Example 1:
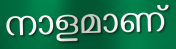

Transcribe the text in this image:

നാളമാണ്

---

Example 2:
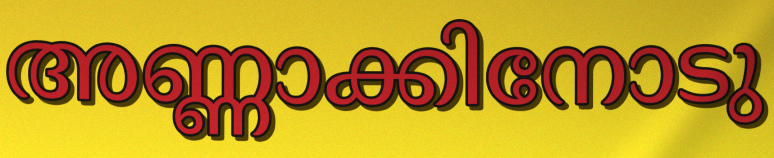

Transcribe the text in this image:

അണ്ണാക്കിനോടു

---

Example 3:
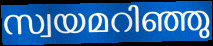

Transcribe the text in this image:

സ്വയമറിഞ്ഞു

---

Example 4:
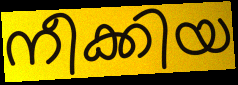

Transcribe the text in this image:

നീക്കിയ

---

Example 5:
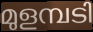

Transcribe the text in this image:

മുളമ്പടി